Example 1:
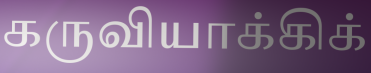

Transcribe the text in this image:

கருவியாக்கிக்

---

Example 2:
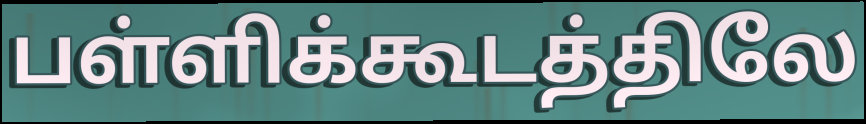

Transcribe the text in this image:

பள்ளிக்கூடத்திலே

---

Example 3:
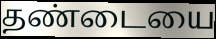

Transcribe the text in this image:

தண்டையை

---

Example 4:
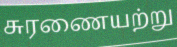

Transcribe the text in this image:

சுரணையற்று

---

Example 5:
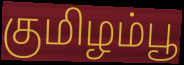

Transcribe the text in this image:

குமிழம்பூ